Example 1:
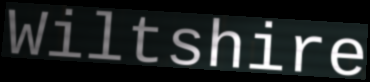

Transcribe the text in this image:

Wiltshire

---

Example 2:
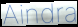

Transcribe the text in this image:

Aindra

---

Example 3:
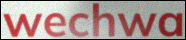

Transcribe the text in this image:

wechwa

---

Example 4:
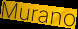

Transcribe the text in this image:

Murano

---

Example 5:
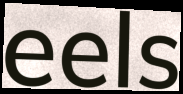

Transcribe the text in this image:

eels